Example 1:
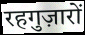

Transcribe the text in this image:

रहगुज़ारों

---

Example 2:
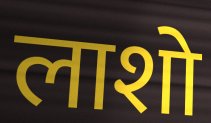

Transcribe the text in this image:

लाशो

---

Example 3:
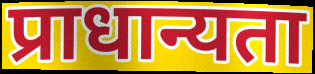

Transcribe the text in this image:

प्राधान्यता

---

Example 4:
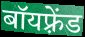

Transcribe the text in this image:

बॉयफ़्रेंड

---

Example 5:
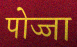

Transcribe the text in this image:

पोज्जा